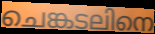
ചെങ്കടലിനെ